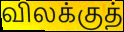
விலக்குத்